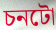
চনটো